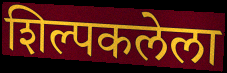
शिल्पकलेला